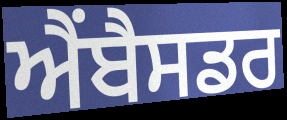
ਐਂਬੈਸਡਰ